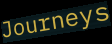
Journeys